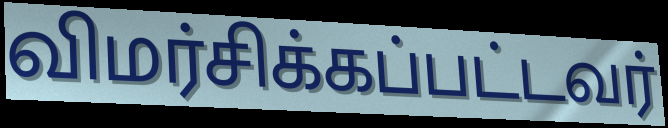
விமர்சிக்கப்பட்டவர்